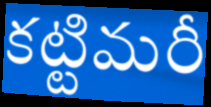
కట్టిమరీ